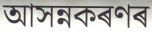
আসন্নকৰণৰ